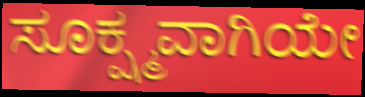
ಸೂಕ್ಷ್ಮವಾಗಿಯೇ